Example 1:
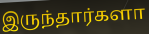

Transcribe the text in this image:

இருந்தார்களா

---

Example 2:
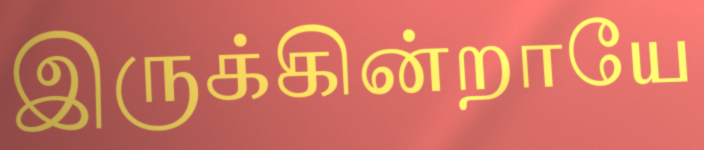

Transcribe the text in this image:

இருக்கின்றாயே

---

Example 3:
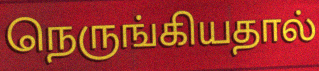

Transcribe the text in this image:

நெருங்கியதால்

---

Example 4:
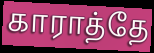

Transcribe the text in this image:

காராத்தே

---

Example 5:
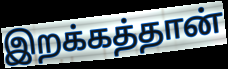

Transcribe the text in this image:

இறக்கத்தான்